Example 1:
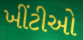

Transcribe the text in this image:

ખીંટીઓ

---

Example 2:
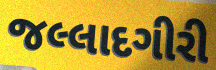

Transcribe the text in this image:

જલ્લાદગીરી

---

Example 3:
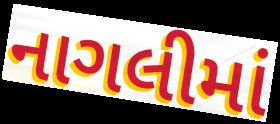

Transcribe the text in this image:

નાગલીમાં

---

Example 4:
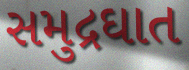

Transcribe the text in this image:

સમુદ્રઘાત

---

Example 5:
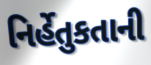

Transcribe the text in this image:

નિર્હેતુકતાની